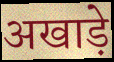
अखाड़े